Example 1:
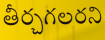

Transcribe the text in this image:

తీర్చగలరని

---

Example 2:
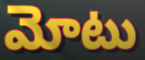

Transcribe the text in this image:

మోటు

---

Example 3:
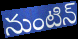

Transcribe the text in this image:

నుంటిన్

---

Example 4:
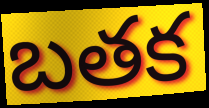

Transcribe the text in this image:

బతక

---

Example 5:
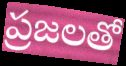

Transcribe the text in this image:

ప్రజలతో